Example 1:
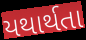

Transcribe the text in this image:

યથાર્થતા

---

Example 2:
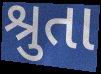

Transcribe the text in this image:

શ્રુતા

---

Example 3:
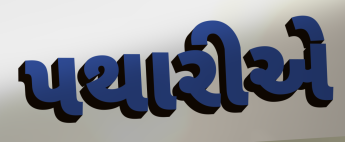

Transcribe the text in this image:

પથારીએ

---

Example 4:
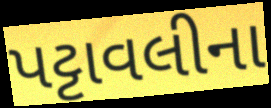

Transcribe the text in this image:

પટ્ટાવલીના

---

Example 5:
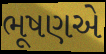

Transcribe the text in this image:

ભૂષણએ